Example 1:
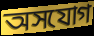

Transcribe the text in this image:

অসযোগ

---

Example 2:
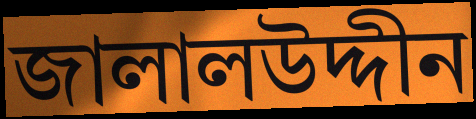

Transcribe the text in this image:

জালালউদ্দীন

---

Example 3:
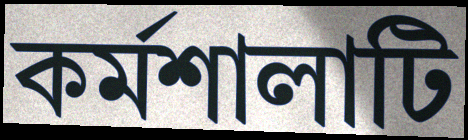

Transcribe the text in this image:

কর্মশালাটি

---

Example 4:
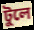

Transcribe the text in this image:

টুলে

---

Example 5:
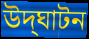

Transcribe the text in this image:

উদ্‌ঘাটন